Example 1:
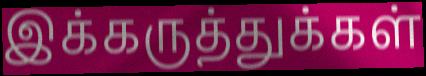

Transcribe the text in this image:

இக்கருத்துக்கள்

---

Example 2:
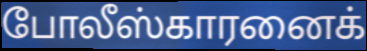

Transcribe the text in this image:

போலீஸ்காரனைக்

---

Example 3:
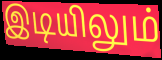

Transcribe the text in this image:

இடியிலும்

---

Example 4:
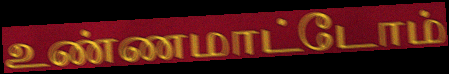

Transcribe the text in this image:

உண்ணமாட்டோம்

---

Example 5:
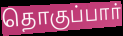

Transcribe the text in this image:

தொகுப்பார்